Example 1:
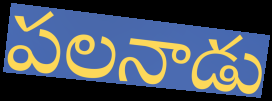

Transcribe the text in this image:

పలనాడు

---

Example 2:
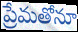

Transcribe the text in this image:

ప్రేమతోనూ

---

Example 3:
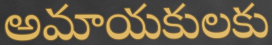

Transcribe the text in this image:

అమాయకులకు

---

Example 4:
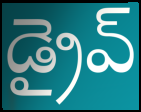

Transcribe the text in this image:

డ్రైవ్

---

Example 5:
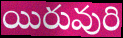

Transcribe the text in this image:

యిరువురి